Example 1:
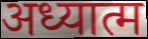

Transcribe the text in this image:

अध्यात्म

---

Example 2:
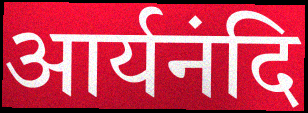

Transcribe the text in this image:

आर्यनंदि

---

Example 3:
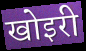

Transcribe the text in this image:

खोइरी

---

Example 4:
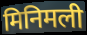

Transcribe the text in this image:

मिनिमली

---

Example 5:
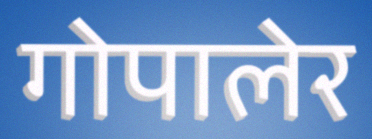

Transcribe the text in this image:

गोपालेर